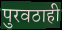
पुरवठाही